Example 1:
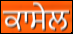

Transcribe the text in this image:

ਕਾਸੇਲ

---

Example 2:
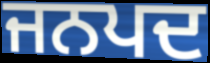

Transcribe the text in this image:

ਜਨਪਦ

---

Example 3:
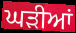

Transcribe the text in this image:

ਘੜੀਆਂ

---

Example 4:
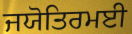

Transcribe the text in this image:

ਜਯੋਤਿਰਮਈ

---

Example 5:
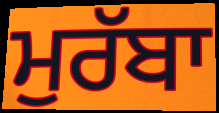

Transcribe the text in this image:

ਮੁਰੱਬਾ